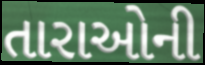
તારાઓની